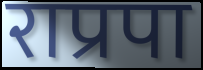
राप्रपा